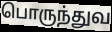
பொருந்துவ